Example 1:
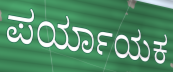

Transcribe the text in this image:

ಪರ್ಯಾಯಕ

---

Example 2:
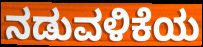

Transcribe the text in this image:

ನಡುವಳಿಕೆಯ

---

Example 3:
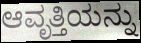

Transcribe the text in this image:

ಆವೃತ್ತಿಯನ್ನು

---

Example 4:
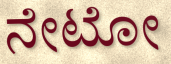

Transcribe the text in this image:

ನೇಟೋ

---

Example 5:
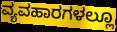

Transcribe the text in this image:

ವ್ಯವಹಾರಗಳಲ್ಲೂ